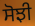
ਸੋਝੀ